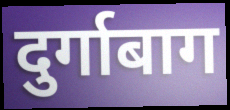
दुर्गाबाग